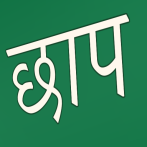
छाप